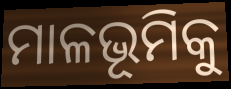
ମାଳଭୂମିକୁ